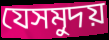
যেসমুদয়